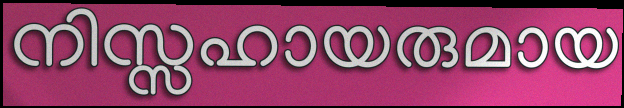
നിസ്സഹായരുമായ